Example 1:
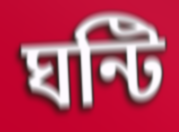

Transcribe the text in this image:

ঘন্টি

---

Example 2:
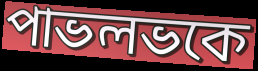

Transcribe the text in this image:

পাভলভকে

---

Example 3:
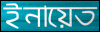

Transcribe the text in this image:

ইনায়েত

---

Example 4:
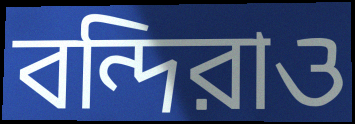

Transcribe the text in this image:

বন্দিরাও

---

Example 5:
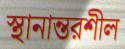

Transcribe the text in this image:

স্থানান্তরশীল